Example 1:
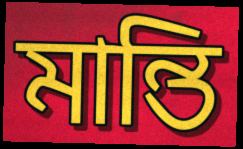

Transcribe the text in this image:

মান্তি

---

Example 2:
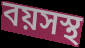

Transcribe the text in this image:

বয়সস্থ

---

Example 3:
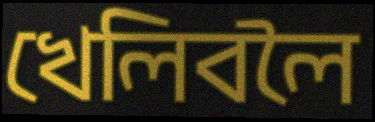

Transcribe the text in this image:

খেলিবলৈ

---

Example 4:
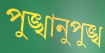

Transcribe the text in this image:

পুঙ্খানুপুঙ্খ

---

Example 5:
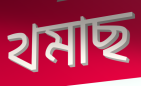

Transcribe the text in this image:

থমাছ